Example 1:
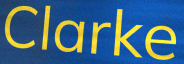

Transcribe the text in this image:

Clarke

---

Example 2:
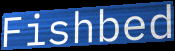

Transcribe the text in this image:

Fishbed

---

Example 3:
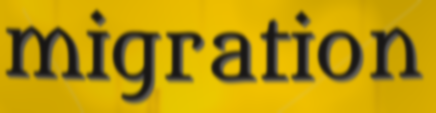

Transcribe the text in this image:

migration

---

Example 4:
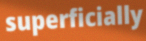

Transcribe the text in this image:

superficially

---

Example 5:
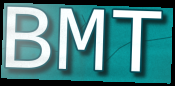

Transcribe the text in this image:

BMT